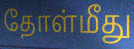
தோள்மீது